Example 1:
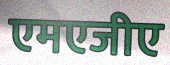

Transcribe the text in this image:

एमएजीए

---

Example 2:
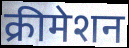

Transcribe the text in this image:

क्रीमेशन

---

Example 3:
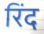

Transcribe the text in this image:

रिंद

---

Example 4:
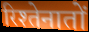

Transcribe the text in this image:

रिश्तेनातों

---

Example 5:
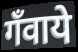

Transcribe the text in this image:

गँवाये